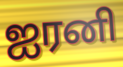
ஐரனி